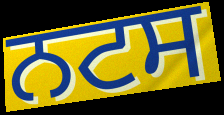
ਨਟਸ